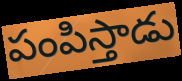
పంపిస్తాడు